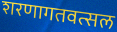
शरणागतवत्सल